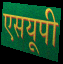
एसयूपी